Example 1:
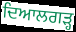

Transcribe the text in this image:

ਦਿਆਲਗੜ੍ਹ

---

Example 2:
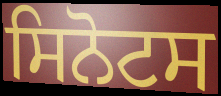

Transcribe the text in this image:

ਸਿਨੋਟਸ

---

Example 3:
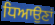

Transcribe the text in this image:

ਧਿਆਉਣਾਂ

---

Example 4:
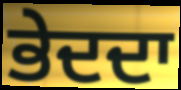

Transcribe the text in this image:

ਭੇਦਦਾ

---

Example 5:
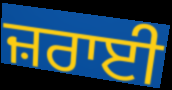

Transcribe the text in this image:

ਜ਼ਰਾਈ